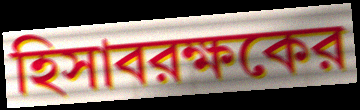
হিসাবরক্ষকের